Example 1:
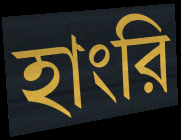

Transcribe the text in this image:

হাংরি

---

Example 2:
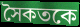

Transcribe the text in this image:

সৈকতকে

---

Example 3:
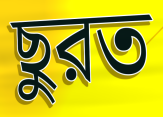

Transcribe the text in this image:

ছুরত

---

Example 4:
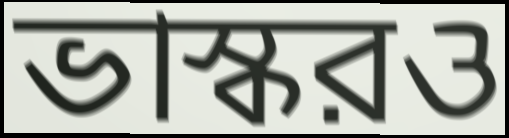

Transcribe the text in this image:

ভাস্করও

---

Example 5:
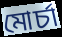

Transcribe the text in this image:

মোর্চা